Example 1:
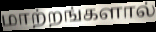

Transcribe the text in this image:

மாற்றங்களால்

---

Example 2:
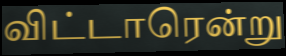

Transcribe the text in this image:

விட்டாரென்று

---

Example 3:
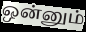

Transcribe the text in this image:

ஒன்னும்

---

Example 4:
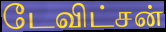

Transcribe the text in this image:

டேவிட்சன்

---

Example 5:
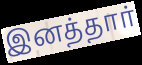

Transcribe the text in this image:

இனத்தார்